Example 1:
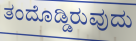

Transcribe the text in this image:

ತಂದೊಡ್ಡಿರುವುದು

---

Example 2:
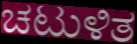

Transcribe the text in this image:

ಚಟುಳಿತ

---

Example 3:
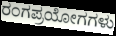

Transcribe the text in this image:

ರಂಗಪ್ರಯೋಗಗಳು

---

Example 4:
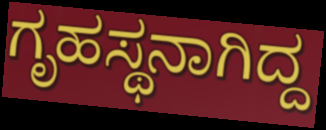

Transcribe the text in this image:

ಗೃಹಸ್ಥನಾಗಿದ್ದ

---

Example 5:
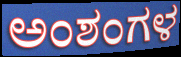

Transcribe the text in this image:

ಅಂಶಂಗಳ